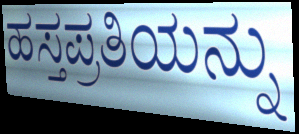
ಹಸ್ತಪ್ರತಿಯನ್ನು